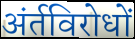
अंर्तविरोधों